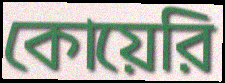
কোয়েরি